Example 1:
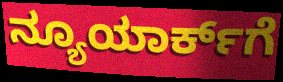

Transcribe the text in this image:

ನ್ಯೂಯಾರ್ಕ್‌ಗೆ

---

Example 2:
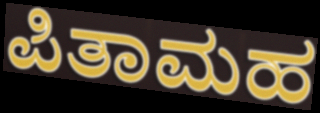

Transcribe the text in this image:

ಪಿತಾಮಹ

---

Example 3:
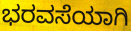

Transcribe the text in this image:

ಭರವಸೆಯಾಗಿ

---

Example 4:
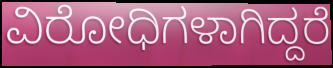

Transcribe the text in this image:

ವಿರೋಧಿಗಳಾಗಿದ್ದರೆ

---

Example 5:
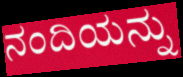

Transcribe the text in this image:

ನಂದಿಯನ್ನು